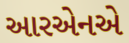
આરએનએ